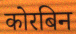
कोरबिन